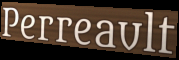
Perreault